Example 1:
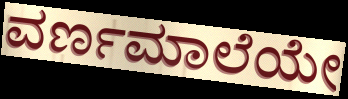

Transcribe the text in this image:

ವರ್ಣಮಾಲೆಯೇ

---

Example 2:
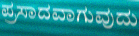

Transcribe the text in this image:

ಪ್ರಸಾದವಾಗುವುದು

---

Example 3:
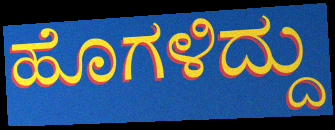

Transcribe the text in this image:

ಹೊಗಳಿದ್ದು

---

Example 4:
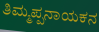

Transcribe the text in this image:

ತಿಮ್ಮಪ್ಪನಾಯಕನ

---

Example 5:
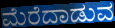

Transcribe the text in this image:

ಮೆರೆದಾಡುವ